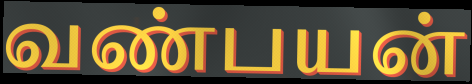
வண்பயன்